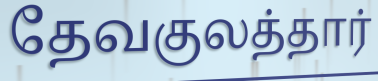
தேவகுலத்தார்